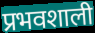
प्रभवशाली